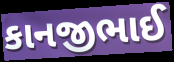
કાનજીભાઈ